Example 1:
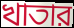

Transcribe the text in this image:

খাতার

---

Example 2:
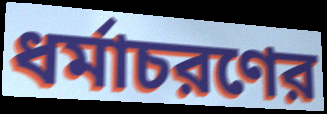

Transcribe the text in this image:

ধর্মাচরণের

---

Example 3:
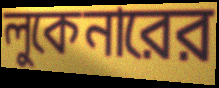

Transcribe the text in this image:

লুকেনারের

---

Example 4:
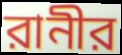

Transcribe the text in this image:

রানীর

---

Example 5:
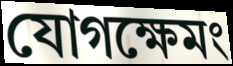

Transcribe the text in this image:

যোগক্ষেমং